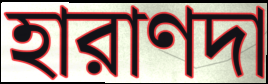
হারাণদা